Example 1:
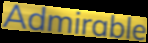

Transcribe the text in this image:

Admirable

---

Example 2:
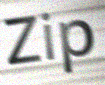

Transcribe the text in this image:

Zip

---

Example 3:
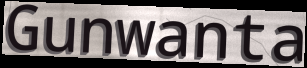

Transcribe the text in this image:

Gunwanta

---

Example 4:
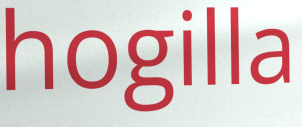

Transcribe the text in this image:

hogilla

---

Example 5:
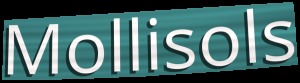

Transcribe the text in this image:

Mollisols